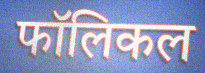
फॉलिकल